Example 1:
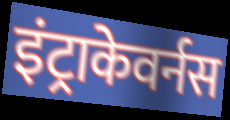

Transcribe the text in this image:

इंट्राकेवर्नस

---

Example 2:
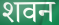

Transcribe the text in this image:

शवन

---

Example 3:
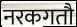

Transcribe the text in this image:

नरकगतौ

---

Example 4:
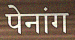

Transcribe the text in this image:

पेनांग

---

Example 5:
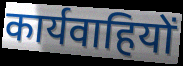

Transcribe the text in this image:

कार्यवाहियों